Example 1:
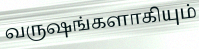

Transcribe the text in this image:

வருஷங்களாகியும்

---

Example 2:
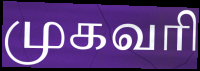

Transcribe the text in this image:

முகவரி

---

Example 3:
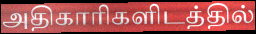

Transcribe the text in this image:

அதிகாரிகளிடத்தில்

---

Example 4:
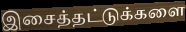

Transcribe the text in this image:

இசைத்தட்டுக்களை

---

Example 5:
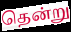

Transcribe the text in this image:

தென்று